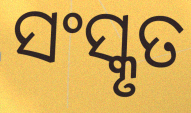
ସଂସ୍କୃତ